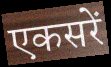
एकसरें